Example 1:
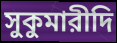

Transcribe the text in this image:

সুকুমারীদি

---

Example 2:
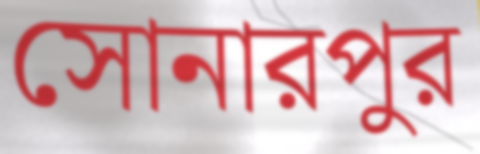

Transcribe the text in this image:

সোনারপুর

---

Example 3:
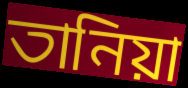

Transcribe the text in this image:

তানিয়া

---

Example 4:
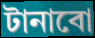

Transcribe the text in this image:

টানাবো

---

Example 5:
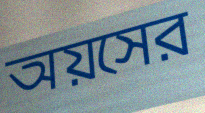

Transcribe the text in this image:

অয়সের